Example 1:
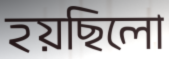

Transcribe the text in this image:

হয়ছিলো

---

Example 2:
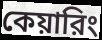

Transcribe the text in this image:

কেয়ারিং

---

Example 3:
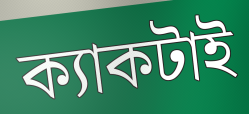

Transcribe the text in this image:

ক্যাকটাই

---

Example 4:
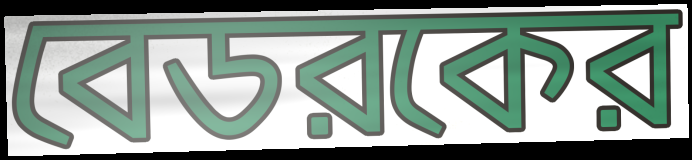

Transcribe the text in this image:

বেডরকের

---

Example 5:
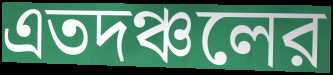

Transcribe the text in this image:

এতদঞ্চলের